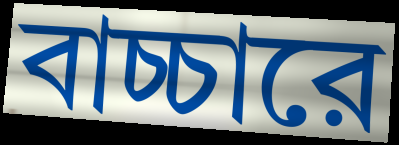
বাচ্চারে